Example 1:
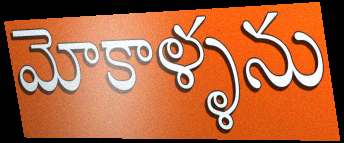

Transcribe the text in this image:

మోకాళ్ళను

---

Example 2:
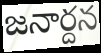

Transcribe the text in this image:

జనార్దన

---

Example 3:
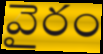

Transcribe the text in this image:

వైరం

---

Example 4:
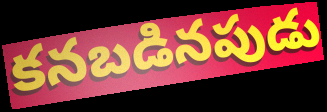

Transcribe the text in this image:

కనబడినపుడు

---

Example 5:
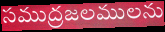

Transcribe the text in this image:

సముద్రజలములను